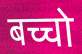
बच्चो